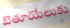
బెతూయేలుకు